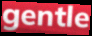
gentle